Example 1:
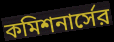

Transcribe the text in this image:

কমিশনার্সের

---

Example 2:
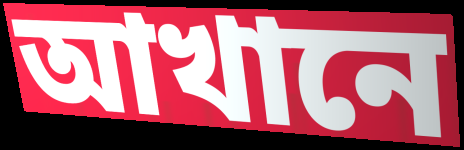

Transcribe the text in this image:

আখানে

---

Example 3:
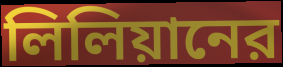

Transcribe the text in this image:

লিলিয়ানের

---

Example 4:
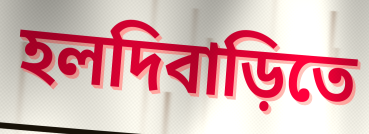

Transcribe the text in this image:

হলদিবাড়িতে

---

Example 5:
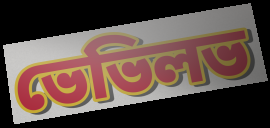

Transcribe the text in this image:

ভেভিলভ